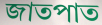
জাতপাত